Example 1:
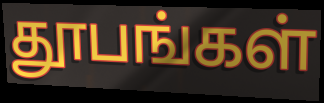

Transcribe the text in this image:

தூபங்கள்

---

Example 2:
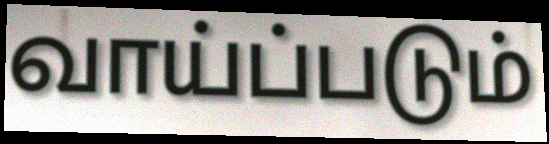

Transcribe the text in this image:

வாய்ப்படும்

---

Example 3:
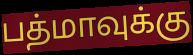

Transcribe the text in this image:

பத்மாவுக்கு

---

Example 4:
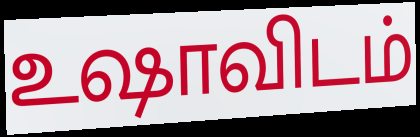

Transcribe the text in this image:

உஷாவிடம்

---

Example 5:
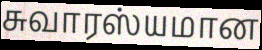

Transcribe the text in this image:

சுவாரஸ்யமான